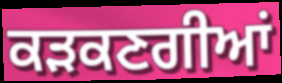
ਕੜਕਣਗੀਆਂ